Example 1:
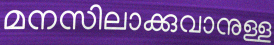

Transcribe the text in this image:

മനസിലാക്കുവാനുള്ള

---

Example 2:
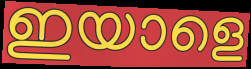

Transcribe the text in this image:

ഇയാളെ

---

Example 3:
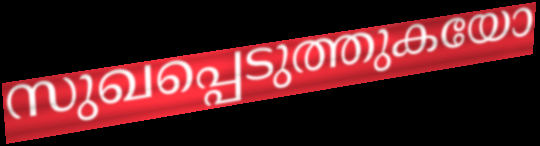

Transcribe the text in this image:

സുഖപ്പെടുത്തുകയോ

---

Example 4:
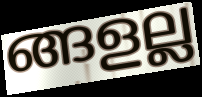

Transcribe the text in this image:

ങ്ങളല്ല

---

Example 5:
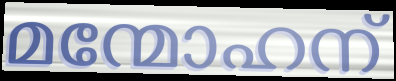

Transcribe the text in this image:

മന്മോഹന്